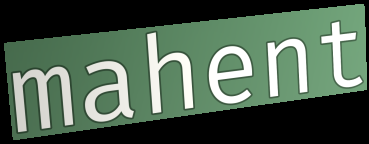
mahent